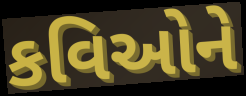
કવિઓને